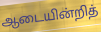
ஆடையின்றித்